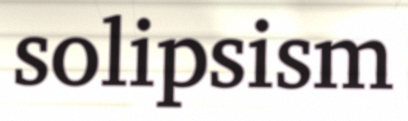
solipsism